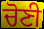
ਚੋਣੀ